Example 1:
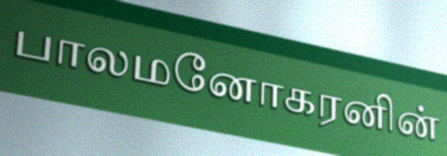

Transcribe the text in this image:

பாலமனோகரனின்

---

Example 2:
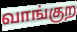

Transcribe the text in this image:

வாங்குற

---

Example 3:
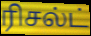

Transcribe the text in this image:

ரிசல்ட்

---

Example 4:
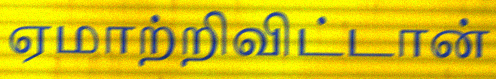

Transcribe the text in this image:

ஏமாற்றிவிட்டான்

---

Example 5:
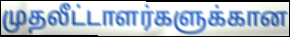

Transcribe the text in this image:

முதலீட்டாளர்களுக்கான